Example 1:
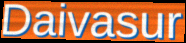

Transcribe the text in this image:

Daivasur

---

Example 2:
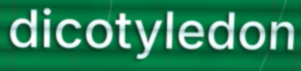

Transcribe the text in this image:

dicotyledon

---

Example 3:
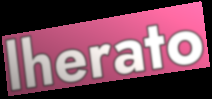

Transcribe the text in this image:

lherato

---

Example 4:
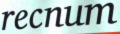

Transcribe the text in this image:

recnum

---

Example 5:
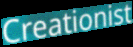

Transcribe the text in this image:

Creationist